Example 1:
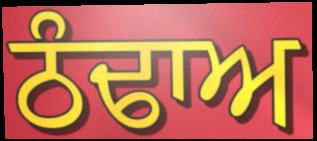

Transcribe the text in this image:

ਠੰਢਾਅ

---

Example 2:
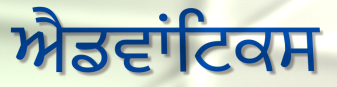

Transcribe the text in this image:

ਐਡਵਾਂਟਿਕਸ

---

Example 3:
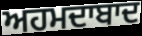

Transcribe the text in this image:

ਅਹਮਦਾਬਾਦ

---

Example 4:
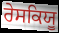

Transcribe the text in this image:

ਰੇਸਕਿਯੂ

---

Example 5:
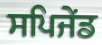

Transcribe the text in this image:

ਸਪਿਜੇਂਡ